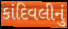
કાંદિવલીનું